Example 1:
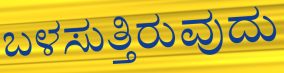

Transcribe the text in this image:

ಬಳಸುತ್ತಿರುವುದು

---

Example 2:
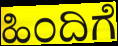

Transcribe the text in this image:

ಹಿಂದಿಗೆ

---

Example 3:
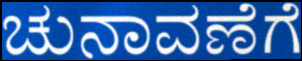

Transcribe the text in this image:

ಚುನಾವಣೆಗೆ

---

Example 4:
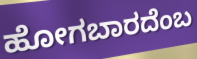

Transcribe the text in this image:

ಹೋಗಬಾರದೆಂಬ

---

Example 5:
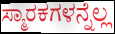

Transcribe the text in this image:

ಸ್ಮಾರಕಗಳನ್ನೆಲ್ಲ